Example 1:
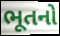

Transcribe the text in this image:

ભૂતનો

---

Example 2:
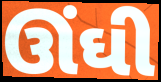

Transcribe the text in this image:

ઊંઘી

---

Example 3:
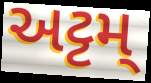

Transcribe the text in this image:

અટ્ટમ્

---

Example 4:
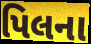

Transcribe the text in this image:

પિલના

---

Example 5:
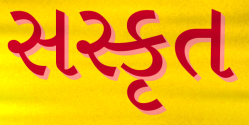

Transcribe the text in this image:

સસ્કૃત